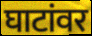
घाटांवर